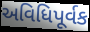
અવિધિપૂર્વક